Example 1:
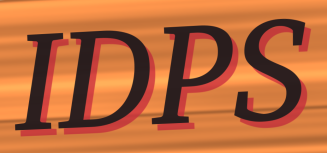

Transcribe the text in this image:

IDPS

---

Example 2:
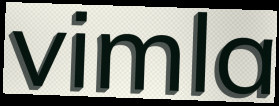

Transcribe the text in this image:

vimla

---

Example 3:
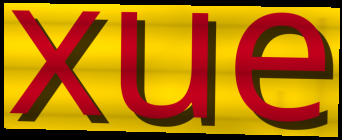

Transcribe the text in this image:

xue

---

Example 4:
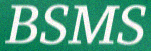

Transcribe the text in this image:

BSMS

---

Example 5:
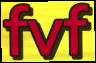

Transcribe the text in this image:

fvf